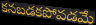
కనబడకపోవడమే